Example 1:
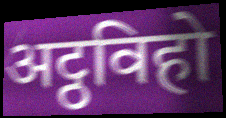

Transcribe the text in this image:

अट्ठविहो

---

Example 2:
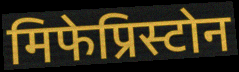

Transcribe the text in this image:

मिफेप्रिस्टोन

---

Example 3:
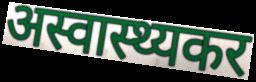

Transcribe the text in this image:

अस्वास्थ्यकर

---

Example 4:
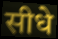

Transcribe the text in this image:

सीधे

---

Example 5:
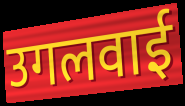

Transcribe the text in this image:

उगलवाई